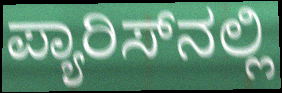
ಪ್ಯಾರಿಸ್‌ನಲ್ಲಿ